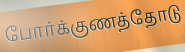
போர்க்குணத்தோடு